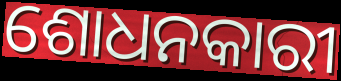
ଶୋଧନକାରୀ